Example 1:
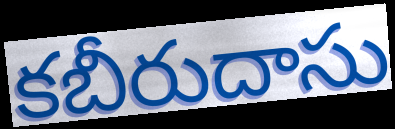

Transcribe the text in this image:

కబీరుదాసు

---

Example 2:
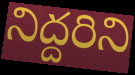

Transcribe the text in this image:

నిద్దరిని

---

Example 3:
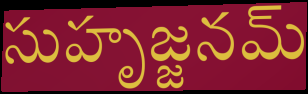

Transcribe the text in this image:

సుహృజ్జనమ్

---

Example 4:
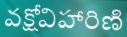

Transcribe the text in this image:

వక్షోవిహారిణి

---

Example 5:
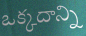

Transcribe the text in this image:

ఒక్కదాన్ని